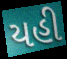
યહી